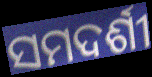
ସମଦର୍ଶୀ